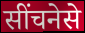
सींचनेसे